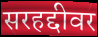
सरहद्दीवर